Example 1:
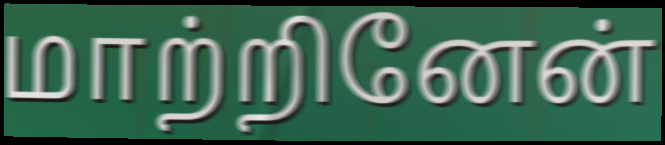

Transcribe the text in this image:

மாற்றினேன்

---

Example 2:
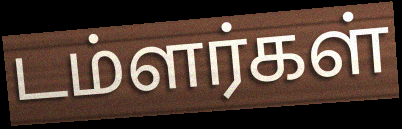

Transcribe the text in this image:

டம்ளர்கள்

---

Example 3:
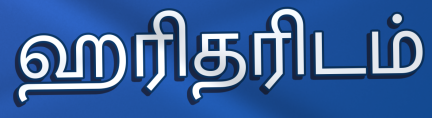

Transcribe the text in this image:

ஹரிதரிடம்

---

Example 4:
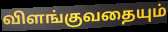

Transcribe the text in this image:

விளங்குவதையும்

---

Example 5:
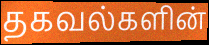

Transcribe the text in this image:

தகவல்களின்